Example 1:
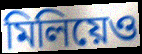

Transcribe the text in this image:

মিলিয়েও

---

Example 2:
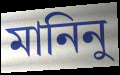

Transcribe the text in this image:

মানিনু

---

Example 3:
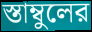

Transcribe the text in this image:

স্তাম্বুলের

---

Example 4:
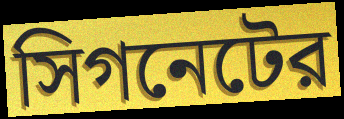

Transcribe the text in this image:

সিগনেটের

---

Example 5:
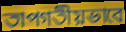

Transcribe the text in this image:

তাপগতীয়ভাবে